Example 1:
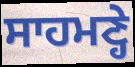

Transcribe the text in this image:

ਸਾਹਮਣ੍ਹੇ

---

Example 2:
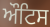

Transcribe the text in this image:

ਔਟਿਸ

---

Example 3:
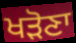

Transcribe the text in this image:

ਖੜੋਣਾ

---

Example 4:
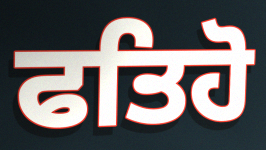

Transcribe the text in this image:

ਫਤਿਹੋ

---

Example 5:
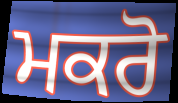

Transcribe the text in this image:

ਮਕਰੋ